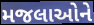
મજલાઓને